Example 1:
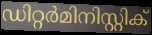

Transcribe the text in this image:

ഡിറ്റർമിനിസ്റ്റിക്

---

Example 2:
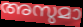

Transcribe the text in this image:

അസുമാ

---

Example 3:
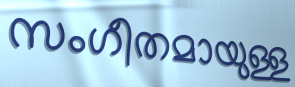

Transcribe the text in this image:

സംഗീതമായുള്ള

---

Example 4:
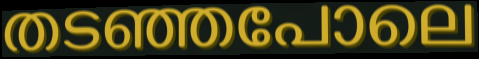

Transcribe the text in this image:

തടഞ്ഞപോലെ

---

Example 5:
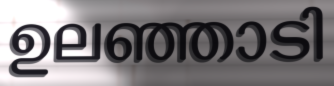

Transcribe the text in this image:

ഉലഞ്ഞാടി